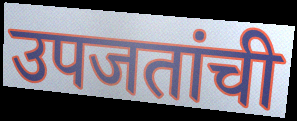
उपजतांची